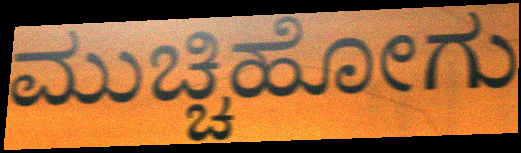
ಮುಚ್ಚಿಹೋಗು